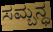
ಸಮ್ಬನ್ಧ